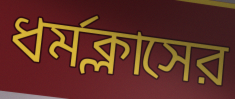
ধর্মক্লাসের